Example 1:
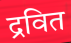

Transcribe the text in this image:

द्रवित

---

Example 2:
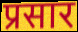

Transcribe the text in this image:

प्रसार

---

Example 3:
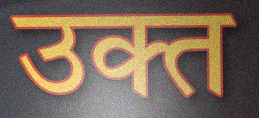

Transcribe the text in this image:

उक्त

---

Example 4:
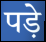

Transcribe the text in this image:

पड़े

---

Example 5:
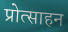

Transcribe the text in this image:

प्रोत्साहन